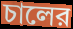
চালের